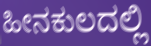
ಹೀನಕುಲದಲ್ಲಿ